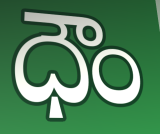
ధౌం